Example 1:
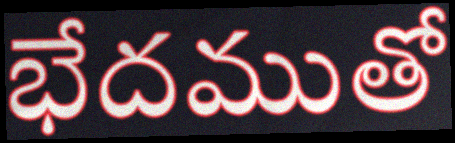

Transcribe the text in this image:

భేదముతో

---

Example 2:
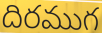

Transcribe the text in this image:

దిరముగ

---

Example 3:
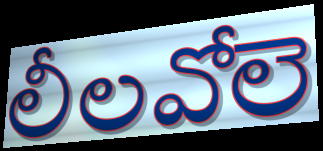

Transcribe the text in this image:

లీలవోలె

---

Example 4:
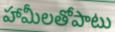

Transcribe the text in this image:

హామీలతోపాటు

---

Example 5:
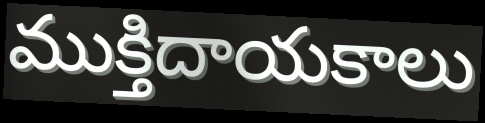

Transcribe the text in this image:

ముక్తిదాయకాలు